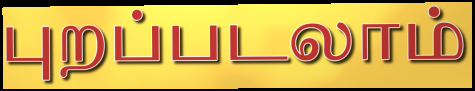
புறப்படலாம்